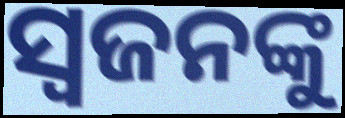
ସ୍ଵଜନଙ୍କୁ